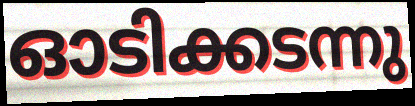
ഓടിക്കടന്നു